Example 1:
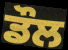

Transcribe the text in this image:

ਡੌਲ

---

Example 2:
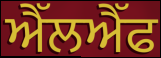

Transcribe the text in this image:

ਐੱਲਐੱਫ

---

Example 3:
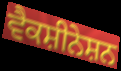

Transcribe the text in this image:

ਵੈਕਸ਼ੀਨੇਸ਼ਨ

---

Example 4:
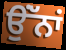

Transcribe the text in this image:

ਉਂੱਨਾਂ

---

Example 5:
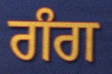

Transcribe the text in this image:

ਗੰਗ